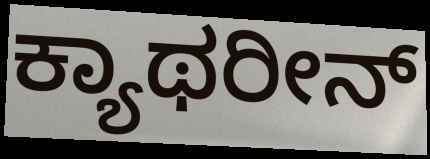
ಕ್ಯಾಥರೀನ್